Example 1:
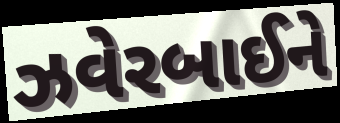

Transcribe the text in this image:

ઝવેરબાઈને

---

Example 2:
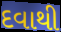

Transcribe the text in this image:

દવાથી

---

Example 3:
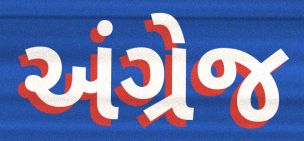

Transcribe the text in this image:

અંગ્રેજ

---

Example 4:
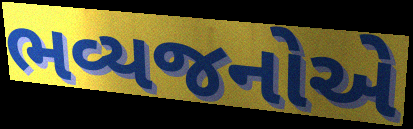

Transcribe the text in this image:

ભવ્યજનોએ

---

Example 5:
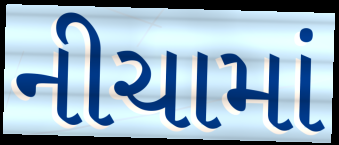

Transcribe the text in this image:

નીચામાં